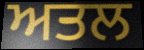
ਅਤਲ